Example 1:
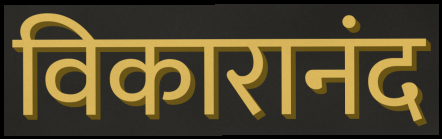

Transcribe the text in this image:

विकारानंद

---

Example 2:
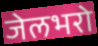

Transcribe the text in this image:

जेलभरो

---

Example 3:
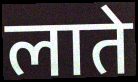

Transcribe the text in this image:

लाते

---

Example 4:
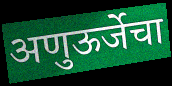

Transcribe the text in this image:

अणुऊर्जेचा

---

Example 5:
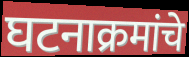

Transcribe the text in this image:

घटनाक्रमांचे